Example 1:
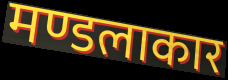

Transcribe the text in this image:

मण्डलाकार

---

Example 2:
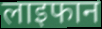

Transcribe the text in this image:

लाइफान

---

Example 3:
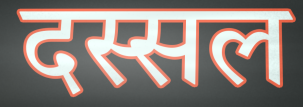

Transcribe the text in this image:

दस्सल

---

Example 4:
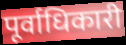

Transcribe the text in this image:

पूर्वाधिकारी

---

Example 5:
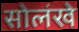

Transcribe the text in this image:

सोलंखे